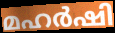
മഹർഷി